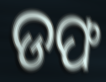
ଡଫ